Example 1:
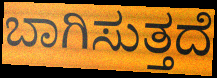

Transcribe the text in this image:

ಬಾಗಿಸುತ್ತದೆ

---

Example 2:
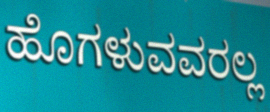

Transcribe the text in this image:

ಹೊಗಳುವವರಲ್ಲ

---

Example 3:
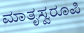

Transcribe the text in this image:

ಮಾತೃಸ್ವರೂಪಿ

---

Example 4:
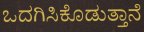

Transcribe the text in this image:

ಒದಗಿಸಿಕೊಡುತ್ತಾನೆ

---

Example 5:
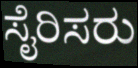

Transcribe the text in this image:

ಸೈರಿಸರು